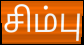
சிம்பு